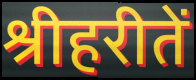
श्रीहरीतें